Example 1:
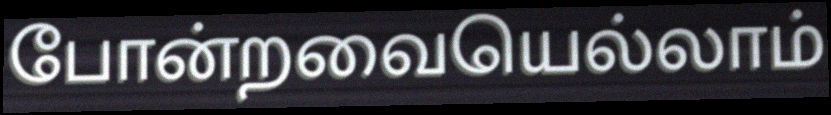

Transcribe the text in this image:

போன்றவையெல்லாம்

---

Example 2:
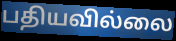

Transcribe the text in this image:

பதியவில்லை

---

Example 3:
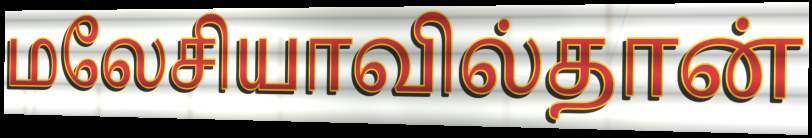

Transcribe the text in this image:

மலேசியாவில்தான்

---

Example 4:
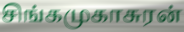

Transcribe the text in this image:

சிங்கமுகாசுரன்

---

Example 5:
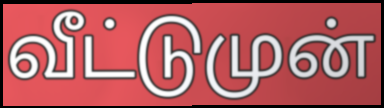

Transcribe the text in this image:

வீட்டுமுன்